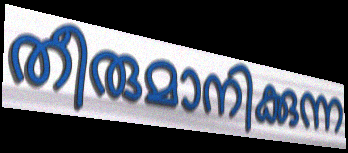
തീരുമാനിക്കുന്ന